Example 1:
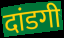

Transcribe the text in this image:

दांडगी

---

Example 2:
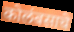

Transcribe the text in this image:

कोलंबसाचे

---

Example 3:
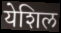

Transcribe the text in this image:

येशिल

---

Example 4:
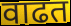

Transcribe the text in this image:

वाढत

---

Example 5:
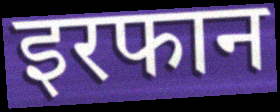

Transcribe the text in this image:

इरफान